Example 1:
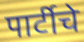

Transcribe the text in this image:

पार्टीचे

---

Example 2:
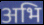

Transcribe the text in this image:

अभि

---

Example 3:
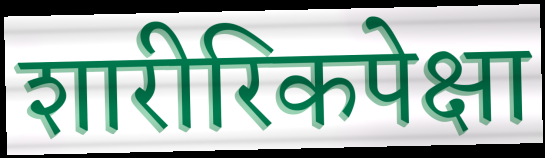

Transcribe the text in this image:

शारीरिकपेक्षा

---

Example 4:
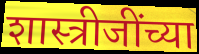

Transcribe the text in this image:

शास्त्रीजींच्या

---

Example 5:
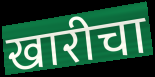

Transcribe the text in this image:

खारीचा